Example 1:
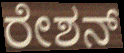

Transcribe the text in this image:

ರೇಶನ್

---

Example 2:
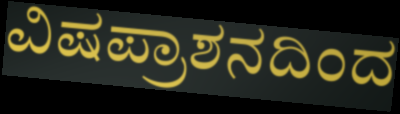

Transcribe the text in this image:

ವಿಷಪ್ರಾಶನದಿಂದ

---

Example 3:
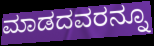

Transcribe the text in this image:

ಮಾಡದವರನ್ನೂ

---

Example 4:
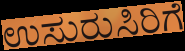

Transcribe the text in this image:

ಉಸುರುಸಿರಿಗೆ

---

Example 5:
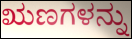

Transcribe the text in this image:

ಋಣಗಳನ್ನು